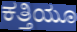
ಕತ್ತಿಯೂ